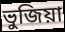
ভুজিয়া